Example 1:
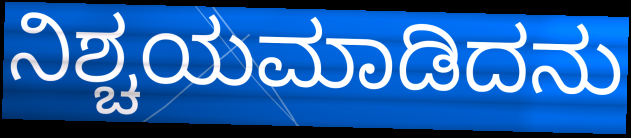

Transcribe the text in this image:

ನಿಶ್ಚಯಮಾಡಿದನು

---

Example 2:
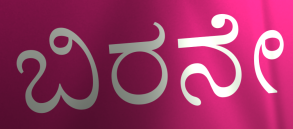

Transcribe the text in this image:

ಬಿರನೇ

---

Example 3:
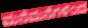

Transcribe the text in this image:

ಮನೆಮನೆಗಳಿಂದ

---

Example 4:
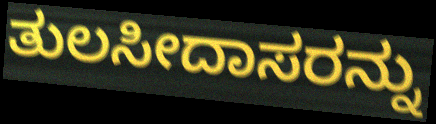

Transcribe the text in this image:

ತುಲಸೀದಾಸರನ್ನು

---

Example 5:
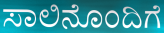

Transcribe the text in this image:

ಸಾಲಿನೊಂದಿಗೆ